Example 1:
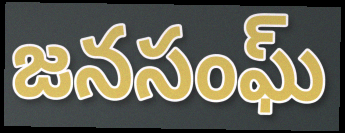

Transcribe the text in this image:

జనసంఘ్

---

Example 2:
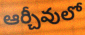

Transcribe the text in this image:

ఆర్చీవులో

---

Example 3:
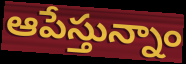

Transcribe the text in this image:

ఆపేస్తున్నాం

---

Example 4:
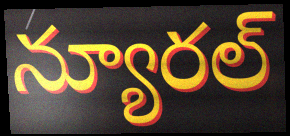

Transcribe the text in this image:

న్యూరల్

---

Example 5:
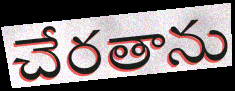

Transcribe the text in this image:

చేరతాను